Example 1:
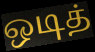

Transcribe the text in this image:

ஒடித்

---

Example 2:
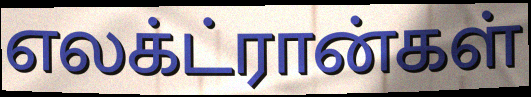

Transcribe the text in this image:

எலக்ட்ரான்கள்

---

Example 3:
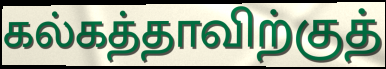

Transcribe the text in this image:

கல்கத்தாவிற்குத்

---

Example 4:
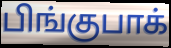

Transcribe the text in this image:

பிங்குபாக்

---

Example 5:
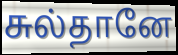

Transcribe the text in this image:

சுல்தானே